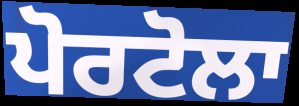
ਪੋਰਟੋਲਾ